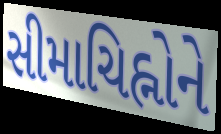
સીમાચિહ્નોને